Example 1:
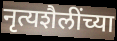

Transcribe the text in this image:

नृत्यशैलींच्या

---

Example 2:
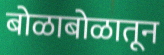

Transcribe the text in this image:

बोळाबोळातून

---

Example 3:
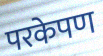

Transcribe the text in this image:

परकेपण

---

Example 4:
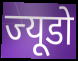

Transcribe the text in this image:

ज्यूडो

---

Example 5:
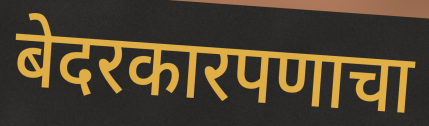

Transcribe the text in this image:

बेदरकारपणाचा